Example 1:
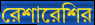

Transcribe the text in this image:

রেশারেশির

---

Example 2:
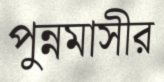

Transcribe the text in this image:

পুন্নমাসীর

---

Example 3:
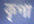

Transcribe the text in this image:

কৃপা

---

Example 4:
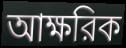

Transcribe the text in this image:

আক্ষরিক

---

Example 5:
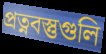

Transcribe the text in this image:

প্রত্নবস্তুগুলি